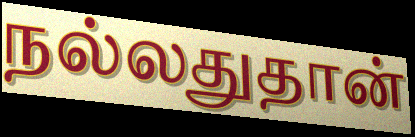
நல்லதுதான்